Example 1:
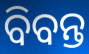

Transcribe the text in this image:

ବିବନ୍ତ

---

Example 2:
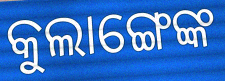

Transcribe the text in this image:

କୁଲାଙ୍ଗେଙ୍କ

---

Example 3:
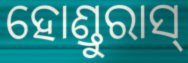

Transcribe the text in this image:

ହୋଣ୍ଡୁରାସ୍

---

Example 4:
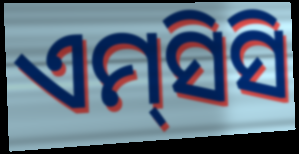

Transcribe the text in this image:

ଏମ୍‌ସିସି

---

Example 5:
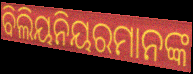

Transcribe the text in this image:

ବିଲିୟନିୟରମାନଙ୍କ